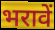
भरावें